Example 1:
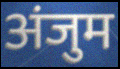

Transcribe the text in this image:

अंजुम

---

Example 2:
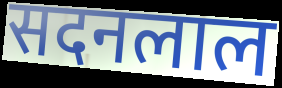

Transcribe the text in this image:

सदनलाल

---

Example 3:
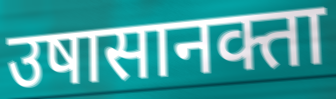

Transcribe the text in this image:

उषासानक्ता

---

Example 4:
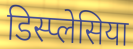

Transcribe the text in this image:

डिस्प्लेसिया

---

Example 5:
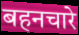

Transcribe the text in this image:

बहनचारे